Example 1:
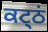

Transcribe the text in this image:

ਕਟ੍ਠਂ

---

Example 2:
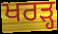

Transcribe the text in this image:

ਖਰੜ੍ਹ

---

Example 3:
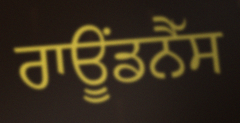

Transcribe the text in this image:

ਰਾਊਂਡਨੈੱਸ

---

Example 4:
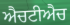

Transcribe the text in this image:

ਐਚਟੀਐਚ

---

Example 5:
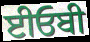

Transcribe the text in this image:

ਈਓਬੀ